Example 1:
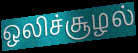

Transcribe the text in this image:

ஒலிச்சூழல்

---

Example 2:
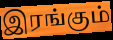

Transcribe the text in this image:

இரங்கும்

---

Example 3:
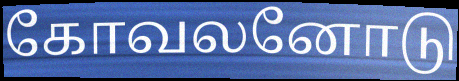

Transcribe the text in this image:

கோவலனோடு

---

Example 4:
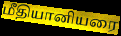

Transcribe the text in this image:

மீதியானியரை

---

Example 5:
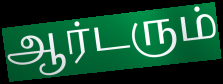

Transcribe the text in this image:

ஆர்டரும்